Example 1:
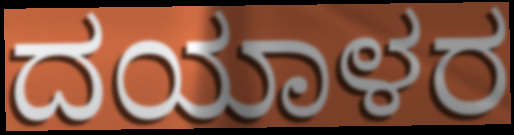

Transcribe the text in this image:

ದಯಾಳರ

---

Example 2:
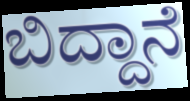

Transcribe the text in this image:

ಬಿದ್ದಾನೆ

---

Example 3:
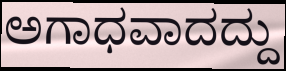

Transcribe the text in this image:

ಅಗಾಧವಾದದ್ದು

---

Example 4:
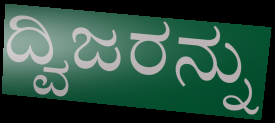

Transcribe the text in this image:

ದ್ವಿಜರನ್ನು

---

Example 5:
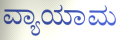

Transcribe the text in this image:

ವ್ಯಾಯಾಮ